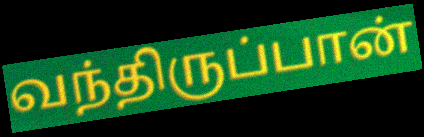
வந்திருப்பான்